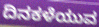
ದಿನಕಳೆಯುವ